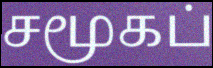
சமூகப்